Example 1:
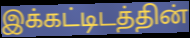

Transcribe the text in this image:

இக்கட்டிடத்தின்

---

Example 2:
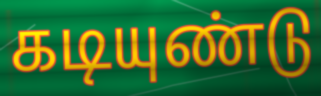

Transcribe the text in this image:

கடியுண்டு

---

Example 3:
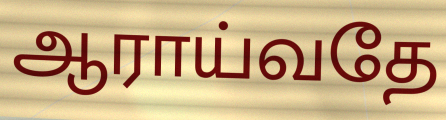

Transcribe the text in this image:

ஆராய்வதே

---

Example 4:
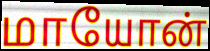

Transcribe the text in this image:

மாயோன்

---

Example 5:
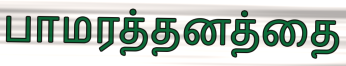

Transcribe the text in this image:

பாமரத்தனத்தை